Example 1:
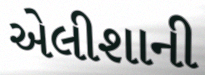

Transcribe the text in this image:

એલીશાની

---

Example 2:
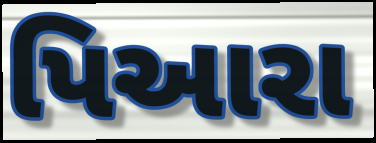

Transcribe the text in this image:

પિઆરા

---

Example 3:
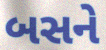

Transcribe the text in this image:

બસને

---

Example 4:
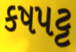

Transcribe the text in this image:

કષપટ્ટ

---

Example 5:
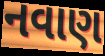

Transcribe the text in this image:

નવાણ